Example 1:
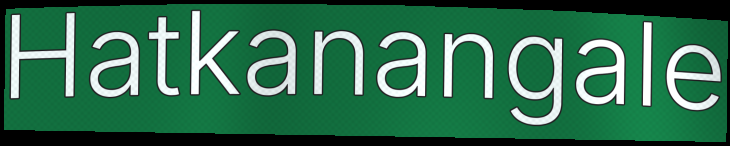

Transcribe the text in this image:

Hatkanangale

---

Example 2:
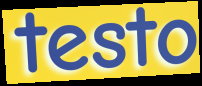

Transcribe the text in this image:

testo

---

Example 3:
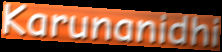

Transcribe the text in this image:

Karunanidhi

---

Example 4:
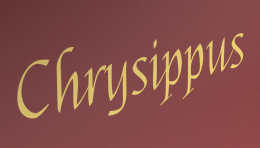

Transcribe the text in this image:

Chrysippus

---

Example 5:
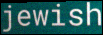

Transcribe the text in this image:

jewish